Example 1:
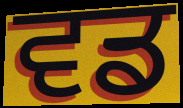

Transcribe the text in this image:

ਵਡ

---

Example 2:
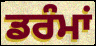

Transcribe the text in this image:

ਡਰੰਮਾਂ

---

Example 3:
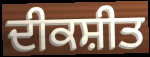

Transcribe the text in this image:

ਦੀਕਸ਼ੀਤ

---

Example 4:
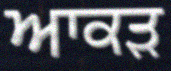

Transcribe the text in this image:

ਆਕੜ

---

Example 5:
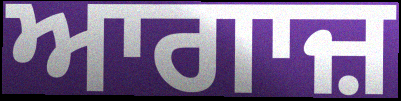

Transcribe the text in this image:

ਆਗਾਜ਼